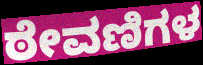
ಠೇವಣಿಗಳ